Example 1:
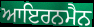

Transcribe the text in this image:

ਆਇਰਨਮੈਨ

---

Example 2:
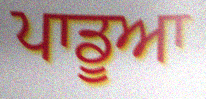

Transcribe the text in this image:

ਪਾਡੂਆ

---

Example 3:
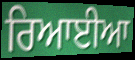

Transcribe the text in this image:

ਰਿਆਈਆ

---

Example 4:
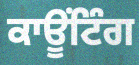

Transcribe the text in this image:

ਕਾਊਂਟਿੰਗ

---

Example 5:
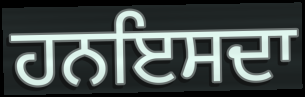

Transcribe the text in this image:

ਹਨਇਸਦਾ